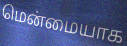
மென்மையாக